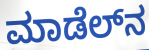
ಮಾಡೆಲ್‌ನ